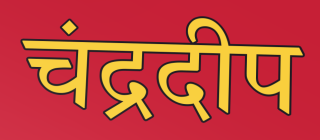
चंद्रदीप